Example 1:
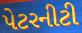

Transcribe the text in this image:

પેટરનીટી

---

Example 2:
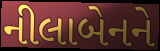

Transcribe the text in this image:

નીલાબેનને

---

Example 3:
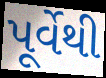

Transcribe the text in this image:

પૂર્વેથી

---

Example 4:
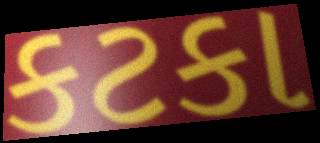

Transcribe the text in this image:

કટકા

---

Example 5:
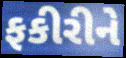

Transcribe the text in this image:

ફકીરીને